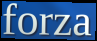
forza